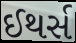
ઈથર્સ